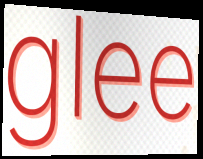
glee